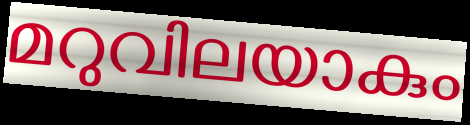
മറുവിലയാകും